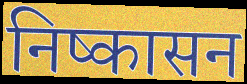
निष्कासन